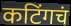
कटिंगचं